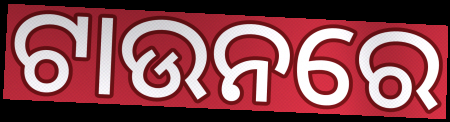
ଟାଉନରେ